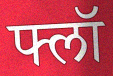
फ्लॉ